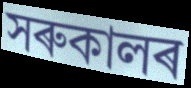
সৰুকালৰ